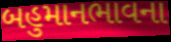
બહુમાનભાવના